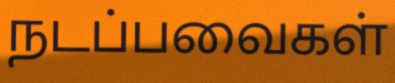
நடப்பவைகள்